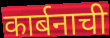
कार्बनाची